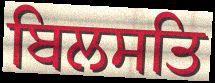
ਬਿਲਸਤਿ